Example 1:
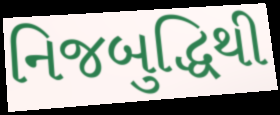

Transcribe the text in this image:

નિજબુદ્ધિથી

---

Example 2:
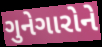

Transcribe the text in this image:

ગુનેગારોને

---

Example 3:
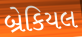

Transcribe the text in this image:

બ્રેકિયલ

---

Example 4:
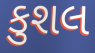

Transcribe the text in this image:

કુશલ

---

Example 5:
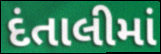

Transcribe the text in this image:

દંતાલીમાં